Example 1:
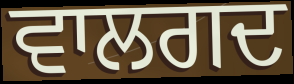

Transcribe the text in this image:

ਵਾਲਗਦ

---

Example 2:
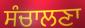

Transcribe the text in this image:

ਸੰਚਾਲਣਾ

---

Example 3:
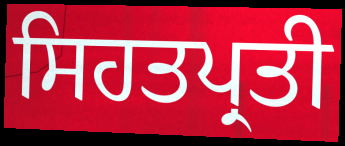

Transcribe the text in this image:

ਸਿਹਤਪ੍ਰਤੀ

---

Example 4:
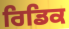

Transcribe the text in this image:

ਰਿਡਿਕ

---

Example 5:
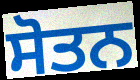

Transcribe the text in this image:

ਸੋਤਨ